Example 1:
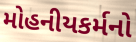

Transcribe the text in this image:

મોહનીયકર્મનો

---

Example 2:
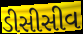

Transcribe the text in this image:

ડીસીસીવ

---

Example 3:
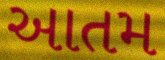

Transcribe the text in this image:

આતમ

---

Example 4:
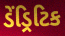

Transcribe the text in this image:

ડેંડ્રિટિક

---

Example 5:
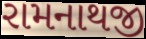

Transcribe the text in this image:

રામનાથજી